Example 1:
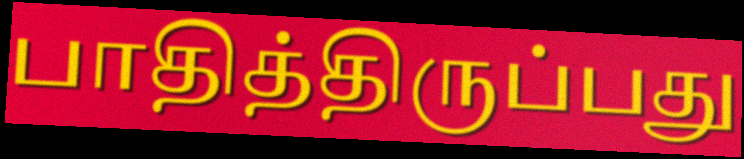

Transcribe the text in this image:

பாதித்திருப்பது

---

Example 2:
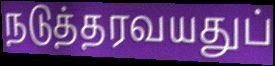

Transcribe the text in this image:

நடுத்தரவயதுப்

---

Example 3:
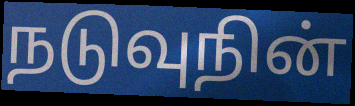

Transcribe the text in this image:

நடுவுநின்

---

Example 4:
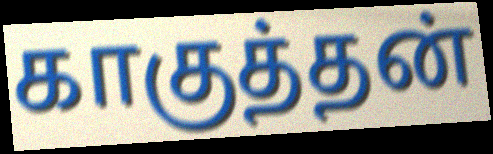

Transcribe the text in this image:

காகுத்தன்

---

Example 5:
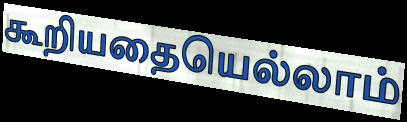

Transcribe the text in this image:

கூறியதையெல்லாம்